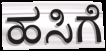
ಹಸಿಗೆ